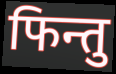
फिन्तु